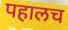
पहालच